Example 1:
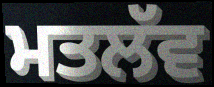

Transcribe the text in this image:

ਮਤਲੱਵ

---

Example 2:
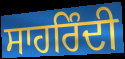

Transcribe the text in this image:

ਸਾਹਰਿੰਦੀ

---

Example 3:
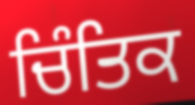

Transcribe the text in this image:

ਚਿੰਤਿਕ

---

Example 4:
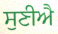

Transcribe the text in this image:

ਸੁਣੀਐ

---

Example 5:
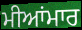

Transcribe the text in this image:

ਮੀਆਂਮਾਰ